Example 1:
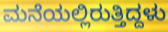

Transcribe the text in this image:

ಮನೆಯಲ್ಲಿರುತ್ತಿದ್ದಳು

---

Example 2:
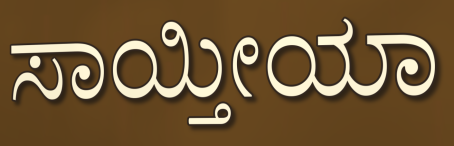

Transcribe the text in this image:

ಸಾಯ್ತೀಯಾ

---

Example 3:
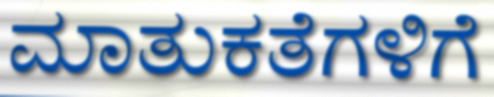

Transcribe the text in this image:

ಮಾತುಕತೆಗಳಿಗೆ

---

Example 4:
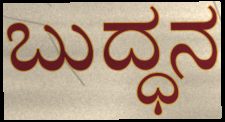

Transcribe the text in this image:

ಬುದ್ಧನ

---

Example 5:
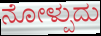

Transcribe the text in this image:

ನೋಳ್ಪುದು